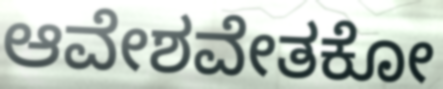
ಆವೇಶವೇತಕೋ